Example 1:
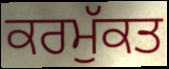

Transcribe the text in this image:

ਕਰਮੁੱਕਤ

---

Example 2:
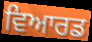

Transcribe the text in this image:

ਵਿਆਰਡ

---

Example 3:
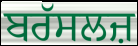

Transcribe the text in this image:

ਬਰੱਸਲਜ਼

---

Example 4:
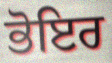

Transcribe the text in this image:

ਭੋਇਰ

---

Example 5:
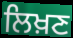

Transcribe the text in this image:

ਲਿਖ਼ਣ